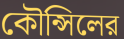
কৌন্সিলের